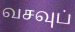
வசவுப்